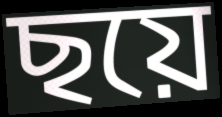
ছয়ে